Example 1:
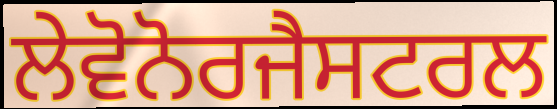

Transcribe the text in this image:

ਲੇਵੋਨੋਰਜੈਸਟਰਲ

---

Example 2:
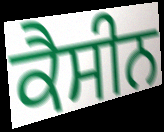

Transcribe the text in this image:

ਕੈਸੀਨ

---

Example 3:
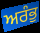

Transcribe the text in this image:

ਅਰੰਭੁ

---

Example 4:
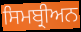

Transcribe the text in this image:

ਸਿਮਬ੍ਰੀਅਨ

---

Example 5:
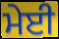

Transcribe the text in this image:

ਮੇਈ